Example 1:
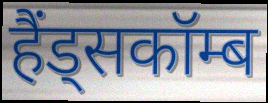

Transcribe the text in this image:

हैंड्सकॉम्ब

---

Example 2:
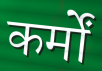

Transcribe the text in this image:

कर्मों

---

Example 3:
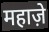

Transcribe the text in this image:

महाज़े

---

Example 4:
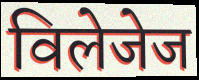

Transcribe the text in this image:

विलेजेज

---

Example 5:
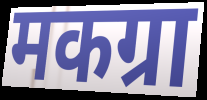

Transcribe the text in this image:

मकग्रा